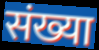
संख्‍या